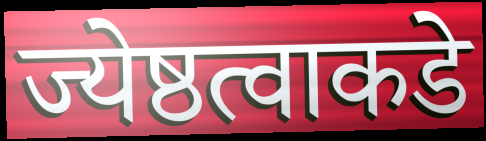
ज्येष्ठत्वाकडे